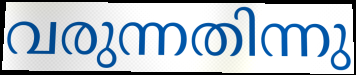
വരുന്നതിന്നു